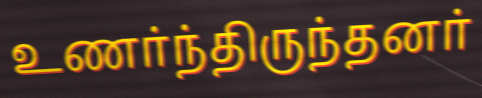
உணர்ந்திருந்தனர்